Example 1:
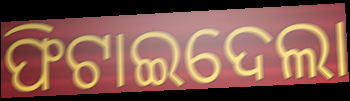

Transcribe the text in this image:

ଫିଟାଇଦେଲା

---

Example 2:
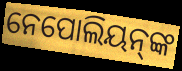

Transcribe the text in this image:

ନେପୋଲିୟନ୍‍ଙ୍କ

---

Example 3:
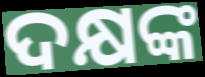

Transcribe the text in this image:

ଦକ୍ଷଙ୍କ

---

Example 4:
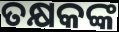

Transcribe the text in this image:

ତକ୍ଷକଙ୍କ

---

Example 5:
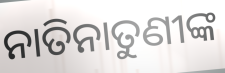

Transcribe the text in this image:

ନାତିନାତୁଣୀଙ୍କ